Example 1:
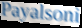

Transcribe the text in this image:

Payalsoni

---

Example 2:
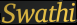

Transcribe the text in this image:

Swathi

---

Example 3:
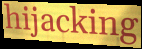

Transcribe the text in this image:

hijacking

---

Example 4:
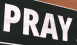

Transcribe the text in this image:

PRAY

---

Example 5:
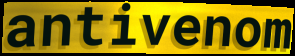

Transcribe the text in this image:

antivenom